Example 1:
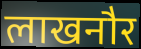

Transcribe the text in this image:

लाखनौर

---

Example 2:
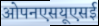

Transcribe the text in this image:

ओपनएसयूएसई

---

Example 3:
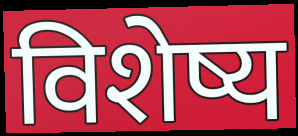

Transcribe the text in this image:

विशेष्य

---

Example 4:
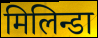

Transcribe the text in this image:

मिलिन्डा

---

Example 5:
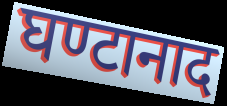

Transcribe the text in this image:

घण्टानाद